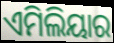
ଏମିଲିୟାର